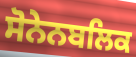
ਸੋਨੇਨਬਲਿਕ